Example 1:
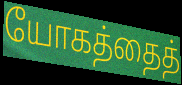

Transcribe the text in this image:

யோகத்தைத்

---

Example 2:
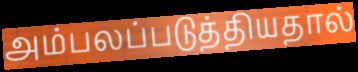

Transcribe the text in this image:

அம்பலப்படுத்தியதால்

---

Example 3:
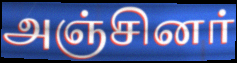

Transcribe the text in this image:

அஞ்சினர்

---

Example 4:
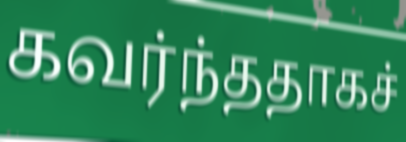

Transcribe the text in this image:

கவர்ந்ததாகச்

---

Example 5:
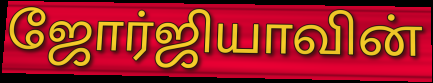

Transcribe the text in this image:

ஜோர்ஜியாவின்